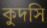
কুদসি